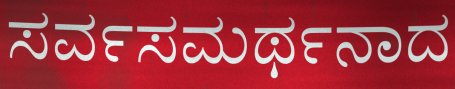
ಸರ್ವಸಮರ್ಥನಾದ